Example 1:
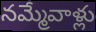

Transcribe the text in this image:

నమ్మేవాళ్లు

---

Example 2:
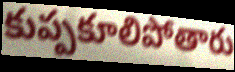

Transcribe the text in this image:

కుప్పకూలిపోతారు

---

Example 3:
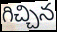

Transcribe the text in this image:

గిచ్చిన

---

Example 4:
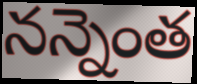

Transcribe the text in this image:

నన్నెంత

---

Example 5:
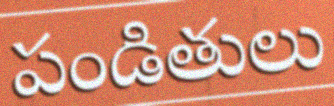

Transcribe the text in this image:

పండితులు